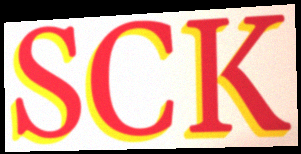
SCK